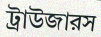
ট্রাউজারস